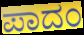
ಪಾದಂ